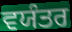
ਵਯੰਤਰ